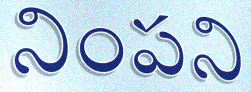
నింపని